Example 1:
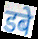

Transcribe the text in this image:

डबे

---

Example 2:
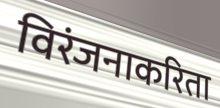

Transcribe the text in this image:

विरंजनाकरिता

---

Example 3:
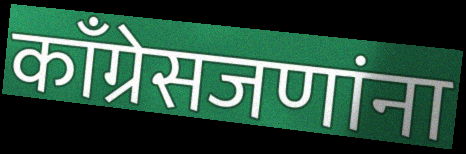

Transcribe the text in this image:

काँग्रेसजणांना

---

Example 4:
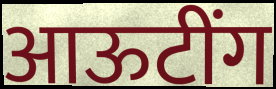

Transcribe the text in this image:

आऊटींग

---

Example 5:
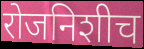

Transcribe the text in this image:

रोजनिशीच